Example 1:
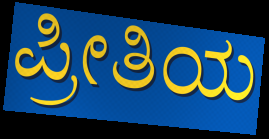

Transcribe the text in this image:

ಪ್ರೀತಿಯ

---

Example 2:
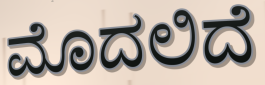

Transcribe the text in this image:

ಮೊದಲಿದೆ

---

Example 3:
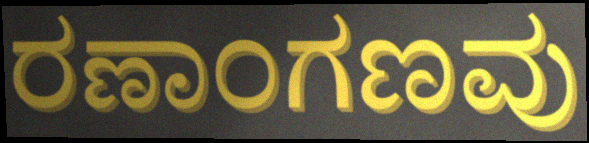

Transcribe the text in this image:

ರಣಾಂಗಣವು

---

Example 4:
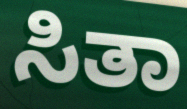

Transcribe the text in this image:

ಸಿತಾ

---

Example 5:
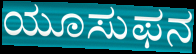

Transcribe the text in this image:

ಯೂಸುಫನ